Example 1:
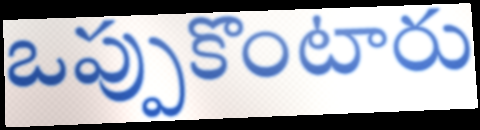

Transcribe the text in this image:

ఒప్పుకొంటారు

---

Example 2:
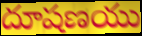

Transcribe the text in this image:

దూషణయు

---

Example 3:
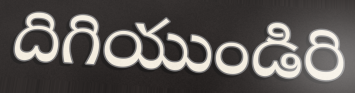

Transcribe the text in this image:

దిగియుండిరి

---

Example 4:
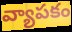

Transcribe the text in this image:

వ్యాపకం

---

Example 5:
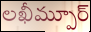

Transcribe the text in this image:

లఖీమ్పూర్